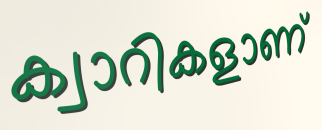
ക്വാറികളാണ്